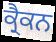
ਕ੍ਰੈਕਨ